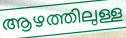
ആഴത്തിലുള്ള